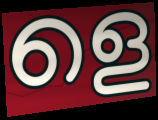
ളെ